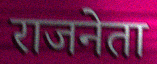
राजनेता